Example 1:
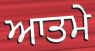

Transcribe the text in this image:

ਆਤਮੇ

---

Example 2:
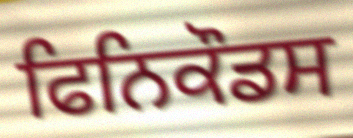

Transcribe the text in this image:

ਫਿਨਿਕੌਡਸ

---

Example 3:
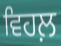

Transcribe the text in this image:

ਵਿਹਲ਼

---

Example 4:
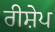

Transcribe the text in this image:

ਰੀਸ਼ੇਪ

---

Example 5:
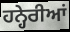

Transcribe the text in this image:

ਹਨ੍ਹੇਰੀਆਂ